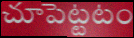
చూపెట్టటం